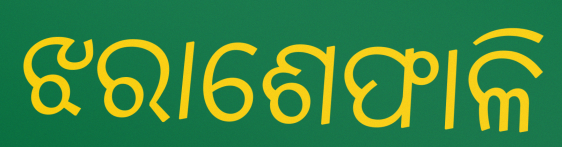
ଝରାଶେଫାଳି